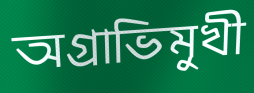
অগ্রাভিমুখী